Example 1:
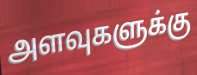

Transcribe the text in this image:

அளவுகளுக்கு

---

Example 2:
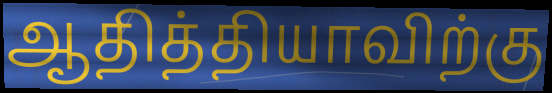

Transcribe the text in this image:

ஆதித்தியாவிற்கு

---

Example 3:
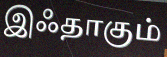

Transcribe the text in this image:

இஃதாகும்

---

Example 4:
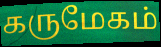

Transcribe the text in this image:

கருமேகம்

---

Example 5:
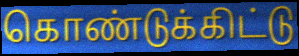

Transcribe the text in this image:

கொண்டுக்கிட்டு